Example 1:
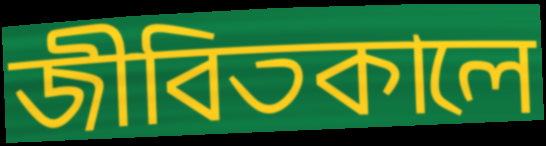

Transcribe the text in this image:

জীবিতকালে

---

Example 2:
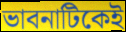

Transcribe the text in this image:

ভাবনাটিকেই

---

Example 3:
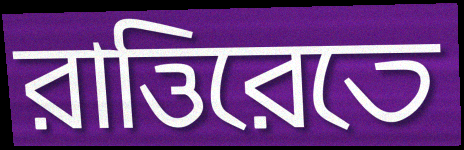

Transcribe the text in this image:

রাত্তিরেতে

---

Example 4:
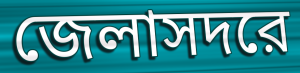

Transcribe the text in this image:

জেলাসদরে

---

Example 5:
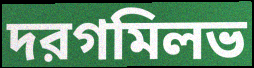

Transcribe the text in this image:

দরগমিলভ